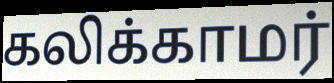
கலிக்காமர்